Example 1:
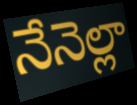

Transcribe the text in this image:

నేనెల్లా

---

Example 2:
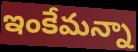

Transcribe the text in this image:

ఇంకేమన్నా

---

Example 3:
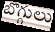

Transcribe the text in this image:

బొగ్గులు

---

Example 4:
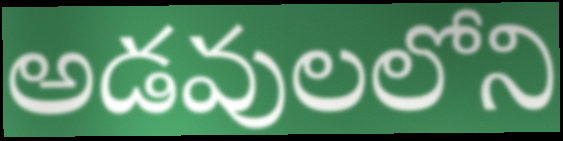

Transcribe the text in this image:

అడవులలోని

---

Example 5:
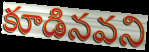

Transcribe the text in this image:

కూడినవని